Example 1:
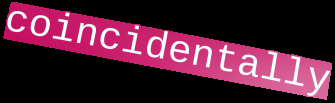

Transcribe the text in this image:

coincidentally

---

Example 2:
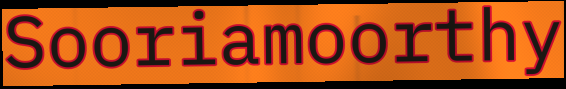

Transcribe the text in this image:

Sooriamoorthy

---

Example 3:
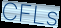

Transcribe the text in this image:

CFLs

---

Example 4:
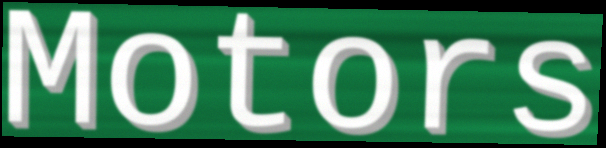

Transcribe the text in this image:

Motors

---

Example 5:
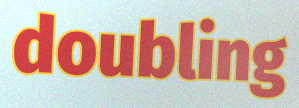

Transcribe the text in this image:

doubling